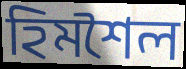
হিমশৈল